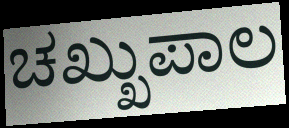
ಚಖ್ಖುಪಾಲ